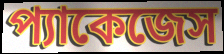
প্যাকেজেস